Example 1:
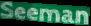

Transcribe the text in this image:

Seeman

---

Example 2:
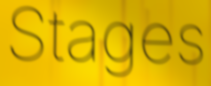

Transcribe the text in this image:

Stages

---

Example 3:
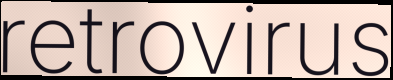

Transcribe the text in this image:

retrovirus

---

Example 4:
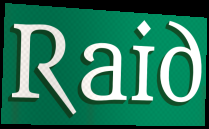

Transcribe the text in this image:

Raid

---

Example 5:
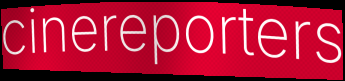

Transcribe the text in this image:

cinereporters